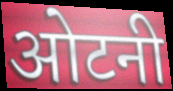
ओटनी